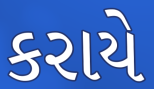
કરાયે